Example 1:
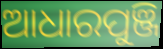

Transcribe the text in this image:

ଆଧାରପୁଞ୍ଜି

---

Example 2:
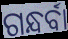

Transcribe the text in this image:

ଗନ୍ଧର୍ବା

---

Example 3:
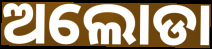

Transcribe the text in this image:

ଅଲୋଡା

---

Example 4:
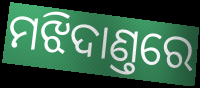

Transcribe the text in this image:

ମଝିଦାଣ୍ତରେ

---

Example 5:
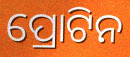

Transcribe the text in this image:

ପ୍ରୋଟିନ